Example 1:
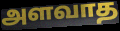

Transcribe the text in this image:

அளவாத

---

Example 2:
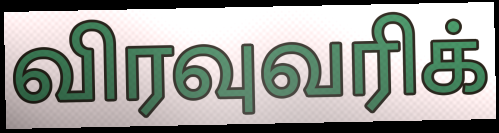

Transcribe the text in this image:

விரவுவரிக்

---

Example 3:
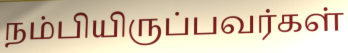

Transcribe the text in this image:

நம்பியிருப்பவர்கள்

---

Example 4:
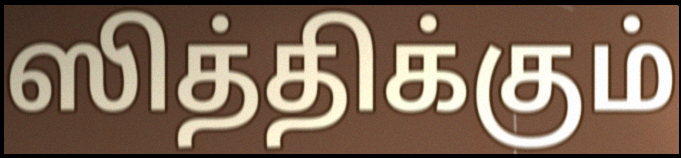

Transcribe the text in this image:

ஸித்திக்கும்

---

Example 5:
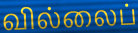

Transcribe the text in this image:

வில்லைப்